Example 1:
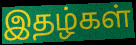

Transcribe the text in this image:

இதழ்கள்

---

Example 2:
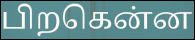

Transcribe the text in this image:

பிறகென்ன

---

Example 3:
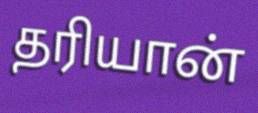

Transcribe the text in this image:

தரியான்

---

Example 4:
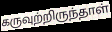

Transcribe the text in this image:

கருவுற்றிருந்தாள்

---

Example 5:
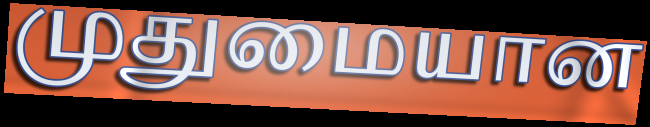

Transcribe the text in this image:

முதுமையான